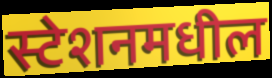
स्टेशनमधील